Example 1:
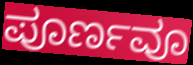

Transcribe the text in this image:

ಪೂರ್ಣವೂ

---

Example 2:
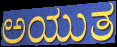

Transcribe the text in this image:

ಅಯುತ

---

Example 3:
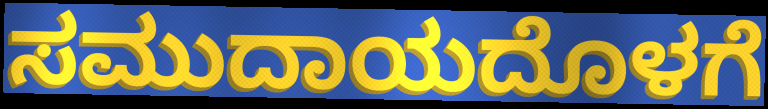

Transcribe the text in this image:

ಸಮುದಾಯದೊಳಗೆ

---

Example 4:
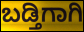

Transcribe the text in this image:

ಬಡ್ತಿಗಾಗಿ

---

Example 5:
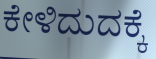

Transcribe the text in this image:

ಕೇಳಿದುದಕ್ಕೆ